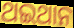
ଥଇଥାନ